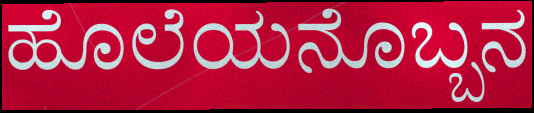
ಹೊಲೆಯನೊಬ್ಬನ